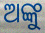
ଅଙ୍କୁ